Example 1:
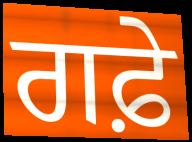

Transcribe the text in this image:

ਗਫ਼ੇ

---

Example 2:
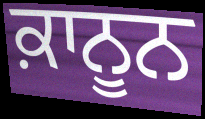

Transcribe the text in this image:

ਕ਼ਾਨੂਨ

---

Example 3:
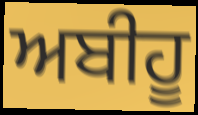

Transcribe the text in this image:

ਅਬੀਹੂ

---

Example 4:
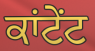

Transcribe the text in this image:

ਕਾਂਟੇਂਟ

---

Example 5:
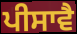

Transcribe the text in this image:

ਪੀਸਾਵੈ